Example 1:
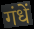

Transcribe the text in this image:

गंधें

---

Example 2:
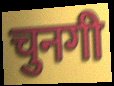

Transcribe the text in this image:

चुनगी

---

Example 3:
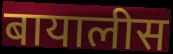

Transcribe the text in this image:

बायालीस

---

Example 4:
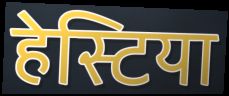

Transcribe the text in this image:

हेस्टिया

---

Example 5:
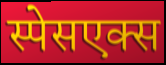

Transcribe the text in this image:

स्पेसएक्स